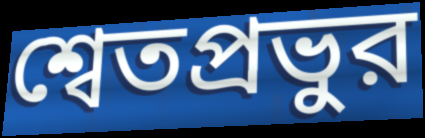
শ্বেতপ্রভুর